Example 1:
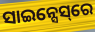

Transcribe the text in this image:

ସାଇନ୍ସେସ୍‌ରେ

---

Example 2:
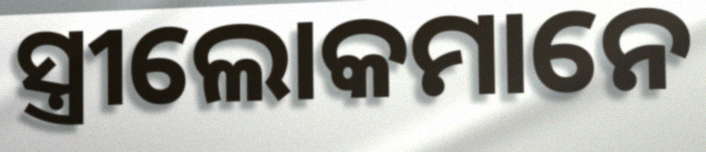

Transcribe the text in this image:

ସ୍ତ୍ରୀଲୋକମାନେ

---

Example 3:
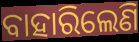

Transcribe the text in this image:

ବାହାରିଲେଣି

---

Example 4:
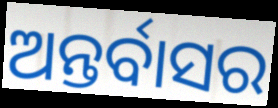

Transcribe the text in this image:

ଅନ୍ତର୍ବାସର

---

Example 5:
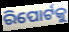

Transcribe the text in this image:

ରିପୋର୍ଟକୁ